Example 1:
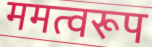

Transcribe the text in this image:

ममत्वरूप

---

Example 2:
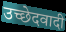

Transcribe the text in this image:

उच्छेदवादी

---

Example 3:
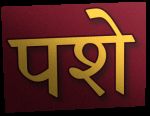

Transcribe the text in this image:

पशे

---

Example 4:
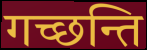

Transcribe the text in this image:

गच्छन्ति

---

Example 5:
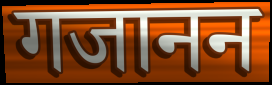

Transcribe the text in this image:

गजानन